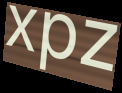
xpz